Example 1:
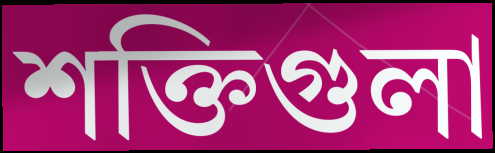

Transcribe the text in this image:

শক্তিগুলা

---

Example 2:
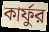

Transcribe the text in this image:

কার্ফুর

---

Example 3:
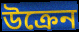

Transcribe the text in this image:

উক্রেন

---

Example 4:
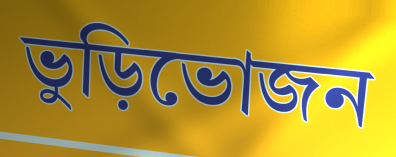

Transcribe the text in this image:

ভুড়িভোজন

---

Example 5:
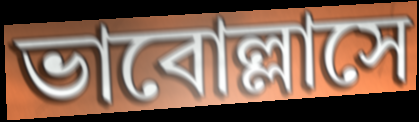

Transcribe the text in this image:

ভাবোল্লাসে